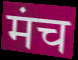
मंच